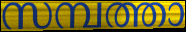
സമ്പത്താ